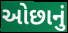
ઓછાનું